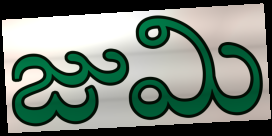
జుమి